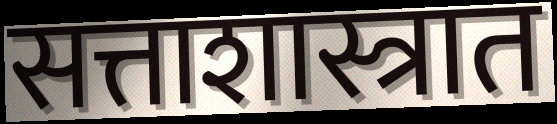
सत्ताशास्त्रात